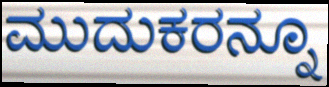
ಮುದುಕರನ್ನೂ